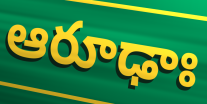
ఆరూఢాః